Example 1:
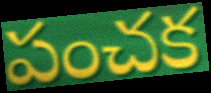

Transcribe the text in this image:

పంచక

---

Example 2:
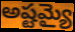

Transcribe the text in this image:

అష్టమ్యై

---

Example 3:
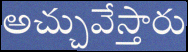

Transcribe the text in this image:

అచ్చువేస్తారు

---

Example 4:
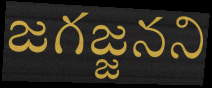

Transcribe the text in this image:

జగజ్జనని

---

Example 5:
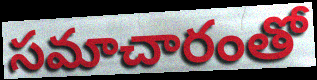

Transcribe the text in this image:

సమాచారంతో